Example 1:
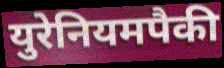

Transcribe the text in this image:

युरेनियमपैकी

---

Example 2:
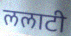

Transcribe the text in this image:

ललाटी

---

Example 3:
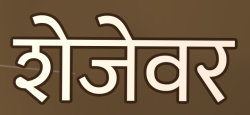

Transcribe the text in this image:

शेजेवर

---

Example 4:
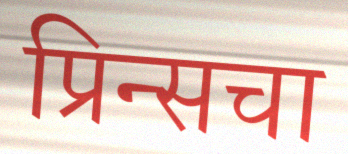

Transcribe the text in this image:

प्रिन्सचा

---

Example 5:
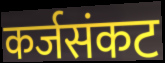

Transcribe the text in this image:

कर्जसंकट